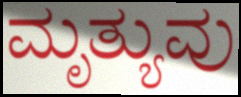
ಮೃತ್ಯುವು